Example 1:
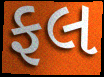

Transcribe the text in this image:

ફલ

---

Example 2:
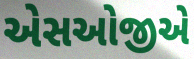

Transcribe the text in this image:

એસઓજીએ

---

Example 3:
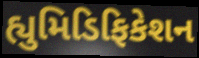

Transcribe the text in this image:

હ્યુમિડિફિકેશન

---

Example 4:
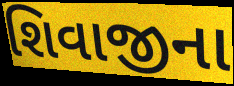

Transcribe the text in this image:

શિવાજીના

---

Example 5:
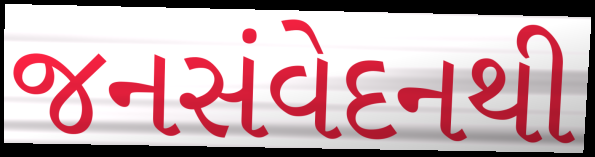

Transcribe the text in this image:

જનસંવેદનથી